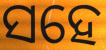
ସହେ